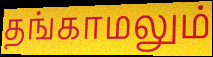
தங்காமலும்